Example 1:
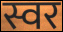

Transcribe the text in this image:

स्वर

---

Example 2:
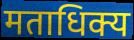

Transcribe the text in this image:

मताधिक्य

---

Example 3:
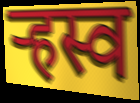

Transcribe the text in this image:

ऱ्हस्व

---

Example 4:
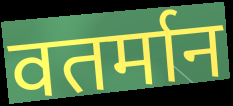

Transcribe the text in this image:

वतर्मान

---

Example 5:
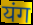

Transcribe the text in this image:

यंग